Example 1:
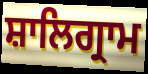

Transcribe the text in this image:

ਸ਼ਾਲਿਗ੍ਰਾਮ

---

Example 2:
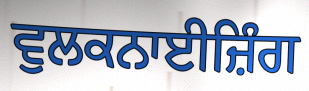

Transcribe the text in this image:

ਵੁਲਕਨਾਈਜ਼ਿੰਗ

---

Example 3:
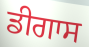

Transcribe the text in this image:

ਡੀਗਾਸ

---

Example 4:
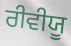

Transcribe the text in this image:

ਰੀਵੀਯੂ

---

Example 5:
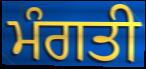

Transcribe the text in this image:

ਮੰਗਤੀ